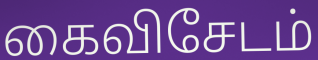
கைவிசேடம்